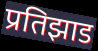
प्रतिझाड